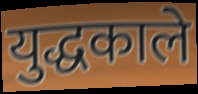
युद्धकाले